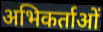
अभिकर्ताओं